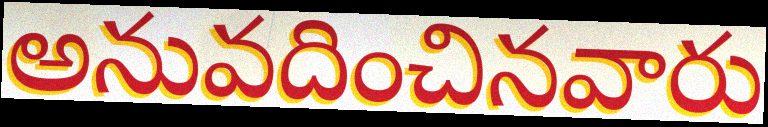
అనువదించినవారు